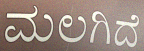
ಮಲಗಿದೆ